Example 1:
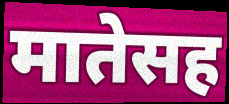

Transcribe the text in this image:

मातेसह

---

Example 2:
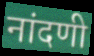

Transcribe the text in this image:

नांदणी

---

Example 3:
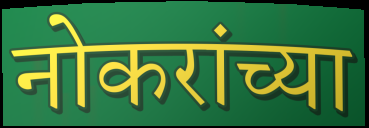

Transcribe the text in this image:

नोकरांच्या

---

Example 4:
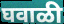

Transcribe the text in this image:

घवाळी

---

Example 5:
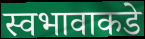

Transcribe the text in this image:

स्वभावाकडे